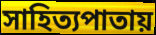
সাহিত্যপাতায়